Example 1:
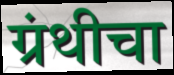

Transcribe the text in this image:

ग्रंथीचा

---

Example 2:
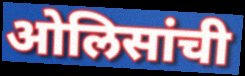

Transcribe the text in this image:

ओलिसांची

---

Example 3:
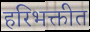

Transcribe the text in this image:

हरिभक्तीत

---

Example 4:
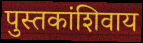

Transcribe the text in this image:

पुस्तकांशिवाय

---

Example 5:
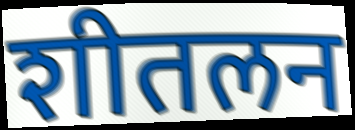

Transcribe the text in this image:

शीतलन